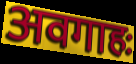
अवगाहः